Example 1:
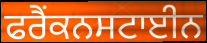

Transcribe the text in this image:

ਫਰੈਂਕਨਸਟਾਈਨ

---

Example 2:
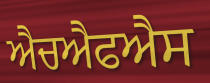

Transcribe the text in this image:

ਐਚਐਫਐਸ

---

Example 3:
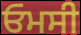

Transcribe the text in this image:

ਓਮਸੀ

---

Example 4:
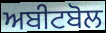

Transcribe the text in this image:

ਅਬੀਟਬੋਲ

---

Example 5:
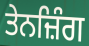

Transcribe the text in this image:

ਤੇਨਜ਼ਿੰਗ